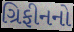
ગ્રિફીનનો